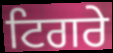
ਟਿਗਰੇ